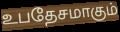
உபதேசமாகும்